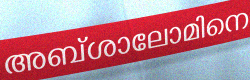
അബ്ശാലോമിനെ